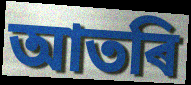
আতৰি